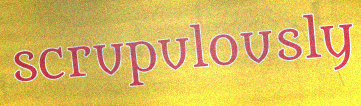
scrupulously